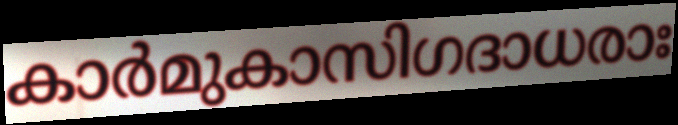
കാർമുകാസിഗദാധരാഃ